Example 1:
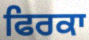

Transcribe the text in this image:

ਫਿਰਕਾ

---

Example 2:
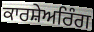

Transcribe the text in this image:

ਕਾਰਸ਼ੇਅਰਿੰਗ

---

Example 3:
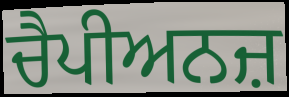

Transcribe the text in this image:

ਚੈਪੀਅਨਜ਼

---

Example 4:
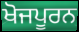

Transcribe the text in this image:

ਖੋਜਪੂਰਨ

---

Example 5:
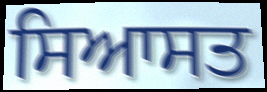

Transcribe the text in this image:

ਸਿਆਸਤ